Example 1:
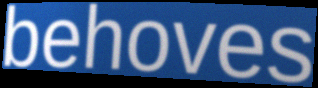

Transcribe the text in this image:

behoves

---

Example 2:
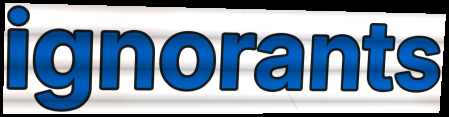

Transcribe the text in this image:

ignorants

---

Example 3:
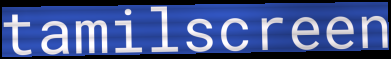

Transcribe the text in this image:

tamilscreen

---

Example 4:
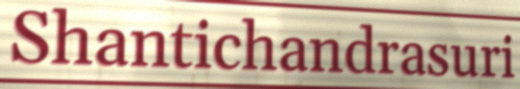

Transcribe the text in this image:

Shantichandrasuri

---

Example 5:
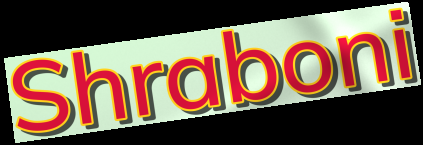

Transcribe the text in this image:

Shraboni